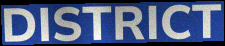
DISTRICT